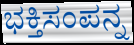
ಭಕ್ತಿಸಂಪನ್ನ